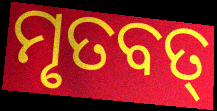
ମୃତବତ୍